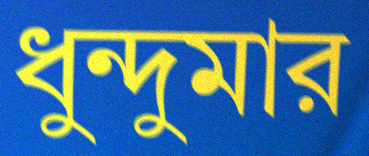
ধুন্দুমার